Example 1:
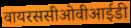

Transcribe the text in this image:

वायरससीओवीआईडी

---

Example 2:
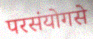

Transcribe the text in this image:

परसंयोगसे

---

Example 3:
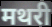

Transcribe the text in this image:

मथरी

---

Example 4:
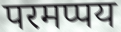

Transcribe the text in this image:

परमप्पय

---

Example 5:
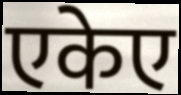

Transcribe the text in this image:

एकेए